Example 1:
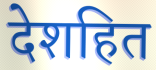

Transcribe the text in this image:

देशहित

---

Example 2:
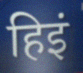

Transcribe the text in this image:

हिइं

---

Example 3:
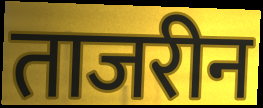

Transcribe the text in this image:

ताजरीन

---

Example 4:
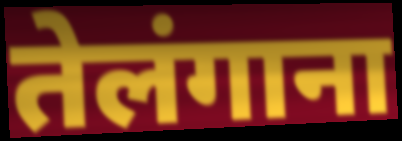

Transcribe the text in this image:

तेलंगाना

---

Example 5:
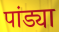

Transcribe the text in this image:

पांड्या